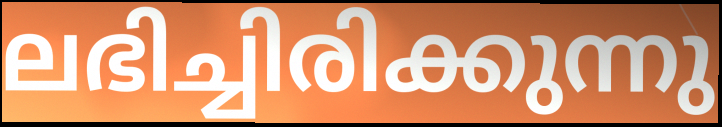
ലഭിച്ചിരിക്കുന്നു